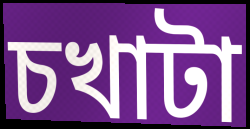
চখাটা